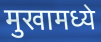
मुखामध्ये